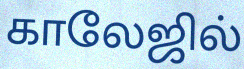
காலேஜில்